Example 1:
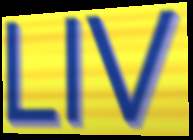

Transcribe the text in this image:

LIV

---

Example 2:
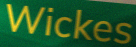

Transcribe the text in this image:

Wickes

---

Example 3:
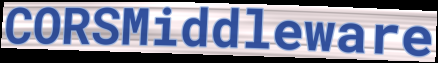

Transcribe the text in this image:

CORSMiddleware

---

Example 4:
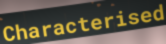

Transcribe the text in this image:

Characterised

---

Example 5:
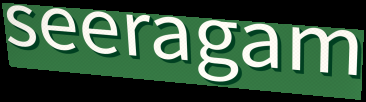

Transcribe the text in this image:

seeragam